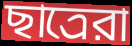
ছাত্রেরা